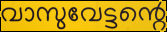
വാസുവേട്ടന്റെ